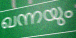
ഖന്നയും